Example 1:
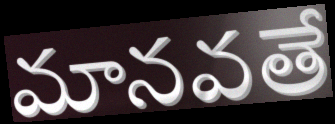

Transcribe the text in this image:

మానవతే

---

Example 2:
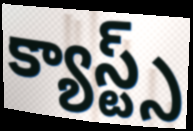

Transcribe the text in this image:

క్యాస్ట్స్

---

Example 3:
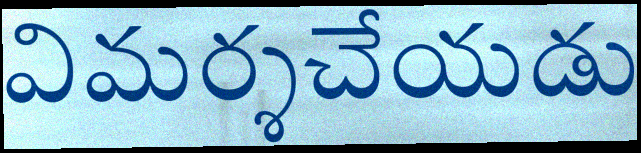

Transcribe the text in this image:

విమర్శచేయడు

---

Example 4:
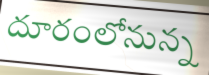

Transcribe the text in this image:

దూరంలోనున్న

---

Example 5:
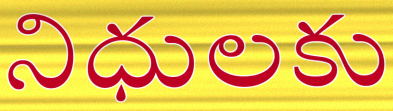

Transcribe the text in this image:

నిధులకు